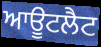
ਆਊਟਲੈਟ